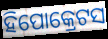
ହିପୋକ୍ରେଟସ